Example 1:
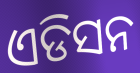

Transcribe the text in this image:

ଏଡିସନ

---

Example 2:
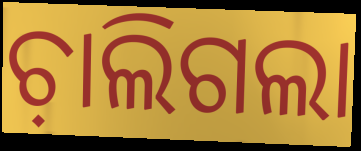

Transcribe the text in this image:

ଚ଼ାଲିଗଲା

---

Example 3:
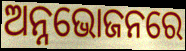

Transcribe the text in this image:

ଅନ୍ନଭୋଜନରେ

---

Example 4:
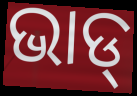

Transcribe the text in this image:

ଭାଡ୍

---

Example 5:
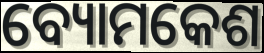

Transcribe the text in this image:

ବ୍ୟୋମକେଶ